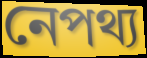
নেপথ্য